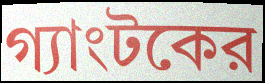
গ্যাংটকের